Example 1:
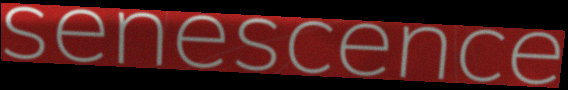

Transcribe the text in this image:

senescence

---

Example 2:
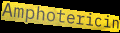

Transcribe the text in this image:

Amphotericin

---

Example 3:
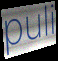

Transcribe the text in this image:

puli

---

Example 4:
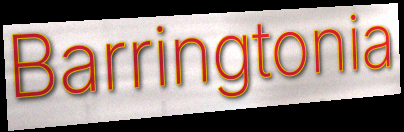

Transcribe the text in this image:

Barringtonia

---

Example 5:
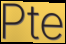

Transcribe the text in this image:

Pte